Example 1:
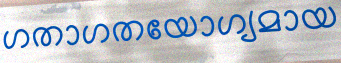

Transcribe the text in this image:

ഗതാഗതയോഗ്യമായ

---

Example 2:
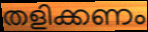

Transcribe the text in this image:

തളിക്കണം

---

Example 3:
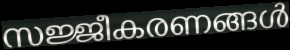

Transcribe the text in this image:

സജ്ജീകരണങ്ങൾ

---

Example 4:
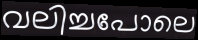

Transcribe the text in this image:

വലിച്ചപോലെ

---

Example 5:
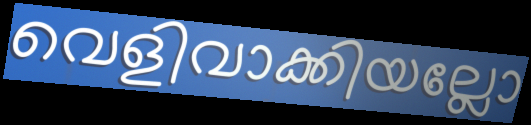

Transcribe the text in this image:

വെളിവാക്കിയല്ലോ